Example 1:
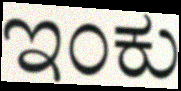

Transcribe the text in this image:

ಇಂಕು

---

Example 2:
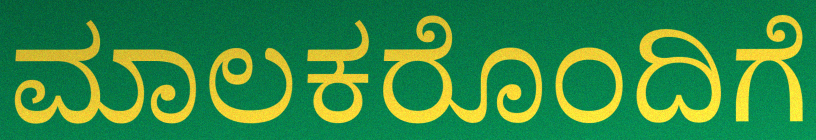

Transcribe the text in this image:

ಮಾಲಕರೊಂದಿಗೆ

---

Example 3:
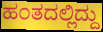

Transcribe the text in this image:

ಹಂತದಲ್ಲಿದ್ದು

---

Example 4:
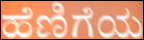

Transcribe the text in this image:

ಹೆಣಿಗೆಯ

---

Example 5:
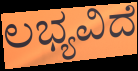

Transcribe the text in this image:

ಲಭ್ಯವಿದೆ